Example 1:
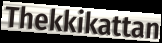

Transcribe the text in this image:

Thekkikattan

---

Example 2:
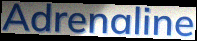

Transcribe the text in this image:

Adrenaline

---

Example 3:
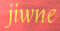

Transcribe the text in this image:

jiwne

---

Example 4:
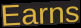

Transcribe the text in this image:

Earns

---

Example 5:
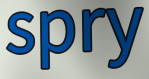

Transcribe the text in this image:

spry